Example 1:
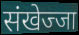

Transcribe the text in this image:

संखेज्जा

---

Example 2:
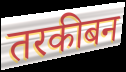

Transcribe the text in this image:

तरकीबन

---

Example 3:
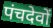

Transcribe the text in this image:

पंचदेवों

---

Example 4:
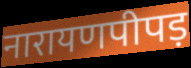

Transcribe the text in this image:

नारायणपीपड़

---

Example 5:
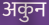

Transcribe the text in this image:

अकुन